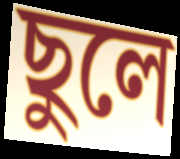
ছুলে